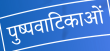
पुष्पवाटिकाओं